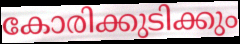
കോരിക്കുടിക്കും